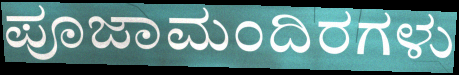
ಪೂಜಾಮಂದಿರಗಳು